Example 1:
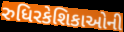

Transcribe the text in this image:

રુધિરકેશિકાઓની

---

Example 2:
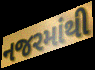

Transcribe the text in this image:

નજરમાંથી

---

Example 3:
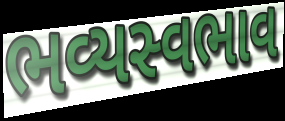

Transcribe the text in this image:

ભવ્યસ્વભાવ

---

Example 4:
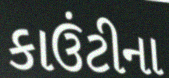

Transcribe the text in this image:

કાઉંટીના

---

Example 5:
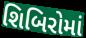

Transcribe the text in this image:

શિબિરોમાં